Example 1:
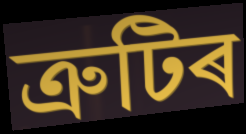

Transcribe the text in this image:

ত্ৰুটিৰ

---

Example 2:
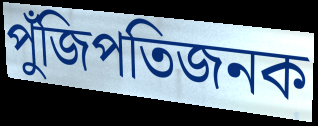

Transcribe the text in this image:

পুঁজিপতিজনক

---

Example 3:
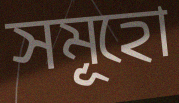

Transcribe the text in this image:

সমূহো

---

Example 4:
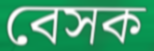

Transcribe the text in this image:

বেসক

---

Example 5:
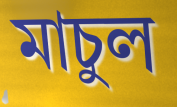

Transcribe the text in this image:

মাচুল